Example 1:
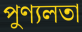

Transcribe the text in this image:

পুণ্যলতা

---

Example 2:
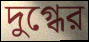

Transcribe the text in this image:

দুগ্ধের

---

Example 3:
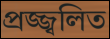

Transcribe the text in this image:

প্রজ্জ্বলিত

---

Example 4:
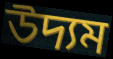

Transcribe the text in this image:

উদ্যম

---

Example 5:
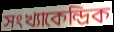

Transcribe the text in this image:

সংখ্যাকেন্দ্রিক